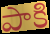
పాకి